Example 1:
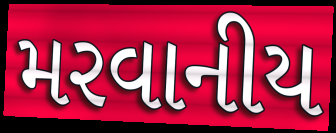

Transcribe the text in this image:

મરવાનીય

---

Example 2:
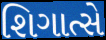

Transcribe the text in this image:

શિગાત્સે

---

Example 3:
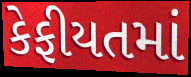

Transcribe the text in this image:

કેફીયતમાં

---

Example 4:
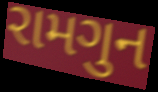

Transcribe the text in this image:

રામગુન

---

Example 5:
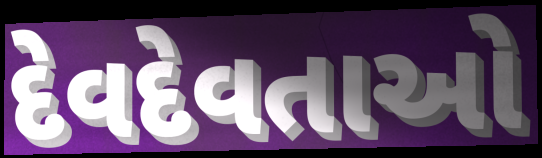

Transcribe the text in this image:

દેવદેવતાઓ